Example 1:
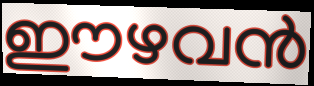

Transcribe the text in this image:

ഈഴവൻ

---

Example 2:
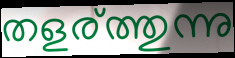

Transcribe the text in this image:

തളര്ത്തുന്നു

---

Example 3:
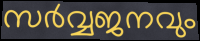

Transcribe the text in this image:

സർവ്വജനവും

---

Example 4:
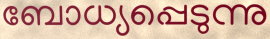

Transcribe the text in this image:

ബോധ്യപ്പെടുന്നു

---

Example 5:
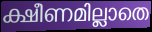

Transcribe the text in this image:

ക്ഷീണമില്ലാതെ